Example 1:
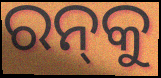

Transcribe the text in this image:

ରନ୍‌କୁ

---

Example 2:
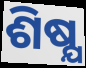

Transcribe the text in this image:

ଶିଷ୍ଯ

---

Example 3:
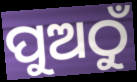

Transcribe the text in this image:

ପୁଅଠୁଁ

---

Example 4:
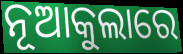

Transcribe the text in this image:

ନୂଆକୁଲାରେ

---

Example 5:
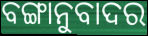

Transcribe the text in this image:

ବଙ୍ଗାନୁବାଦର